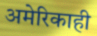
अमेरिकाही